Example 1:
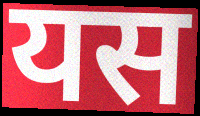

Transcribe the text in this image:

यस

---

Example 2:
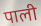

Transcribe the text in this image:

पाली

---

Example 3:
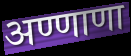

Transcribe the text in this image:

अण्णाणा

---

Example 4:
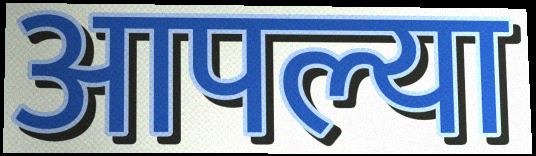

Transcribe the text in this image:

आपल्या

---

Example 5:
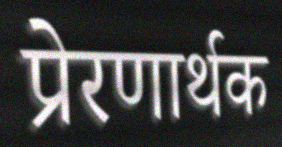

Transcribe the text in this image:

प्रेरणार्थक